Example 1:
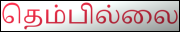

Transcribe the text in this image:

தெம்பில்லை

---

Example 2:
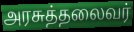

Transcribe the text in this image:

அரசுத்தலைவர்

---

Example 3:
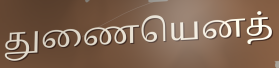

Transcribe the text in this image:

துணையெனத்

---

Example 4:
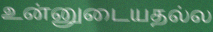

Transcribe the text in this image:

உன்னுடையதல்ல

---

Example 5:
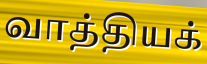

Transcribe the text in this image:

வாத்தியக்